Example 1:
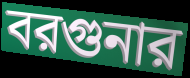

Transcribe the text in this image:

বরগুনার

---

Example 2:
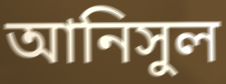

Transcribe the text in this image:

আনিসুল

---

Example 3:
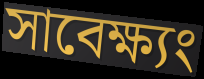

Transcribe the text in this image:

সাবেক্ষ্যং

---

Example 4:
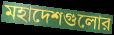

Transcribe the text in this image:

মহাদেশগুলোর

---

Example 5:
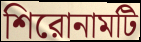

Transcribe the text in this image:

শিরোনামটি